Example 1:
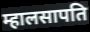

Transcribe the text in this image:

म्हालसापति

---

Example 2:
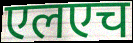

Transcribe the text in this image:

एलएच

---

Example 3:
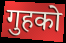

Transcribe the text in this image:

गुहको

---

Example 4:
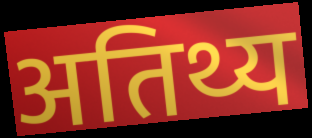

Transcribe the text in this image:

अतिथ्य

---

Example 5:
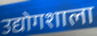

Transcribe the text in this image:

उद्योगशाला